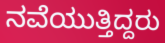
ನವೆಯುತ್ತಿದ್ದರು